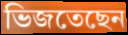
ভিজতেছেন